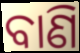
ବାଣି